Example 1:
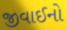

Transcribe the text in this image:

જીવાઈનો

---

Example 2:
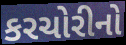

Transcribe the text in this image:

કરચોરીનો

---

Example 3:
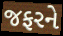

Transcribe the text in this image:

જફરને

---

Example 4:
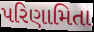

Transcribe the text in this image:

પરિણામિતા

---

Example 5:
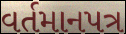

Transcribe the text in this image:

વર્તમાનપત્ર